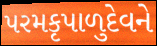
પરમકૃપાળુદેવને